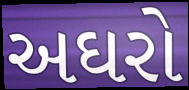
અઘરો